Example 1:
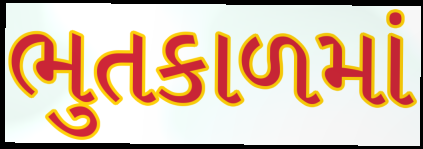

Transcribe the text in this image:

ભુતકાળમાં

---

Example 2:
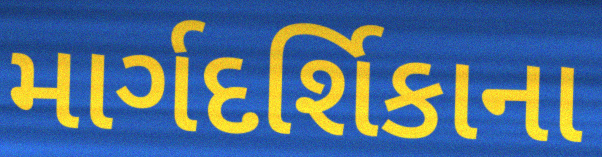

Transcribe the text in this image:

માર્ગદર્શિકાના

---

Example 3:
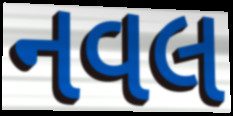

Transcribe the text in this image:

નવલ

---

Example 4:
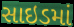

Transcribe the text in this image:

સાઇડમાં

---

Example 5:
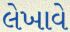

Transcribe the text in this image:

લેખાવે